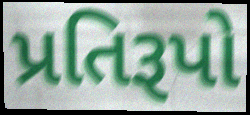
પ્રતિરૂપો